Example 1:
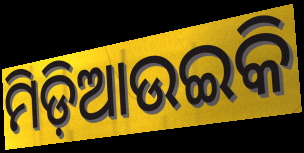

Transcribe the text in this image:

ମିଡ଼ିଆଉଇକି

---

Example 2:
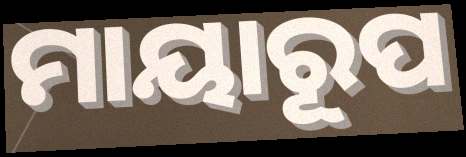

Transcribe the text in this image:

ମାୟାରୂପ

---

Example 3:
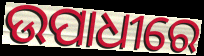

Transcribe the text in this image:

ଉପାଧୀରେ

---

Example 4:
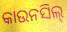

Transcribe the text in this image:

କାଉନସିଲ୍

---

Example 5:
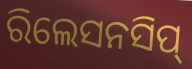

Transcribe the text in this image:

ରିଲେସନସିପ୍